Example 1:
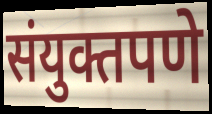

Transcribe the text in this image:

संयुक्तपणे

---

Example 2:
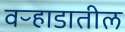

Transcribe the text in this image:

वऱ्हाडातील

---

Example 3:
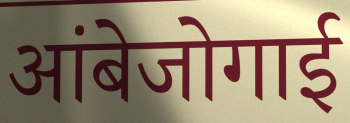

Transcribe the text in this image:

आंबेजोगाई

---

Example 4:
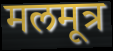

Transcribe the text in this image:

मलमूत्र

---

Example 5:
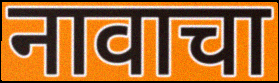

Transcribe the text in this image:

नावाचा